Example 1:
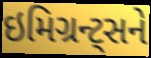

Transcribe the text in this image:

ઇમિગ્રન્ટ્સને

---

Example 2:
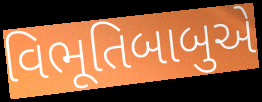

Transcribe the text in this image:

વિભૂતિબાબુએ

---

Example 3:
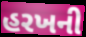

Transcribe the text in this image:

હરખની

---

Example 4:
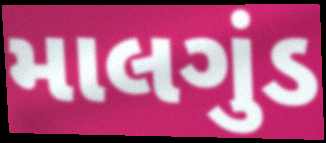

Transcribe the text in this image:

માલગુંડ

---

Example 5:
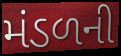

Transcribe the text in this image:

મંડળની